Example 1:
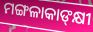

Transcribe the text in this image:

ମଙ୍ଗଳାକାଙ୍‍କ୍ଷୀ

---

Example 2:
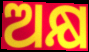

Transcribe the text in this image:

ଅକ୍ଷ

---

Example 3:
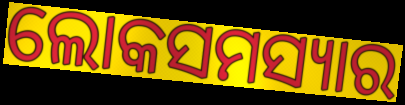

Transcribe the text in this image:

ଲୋକସମସ୍ୟାର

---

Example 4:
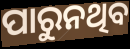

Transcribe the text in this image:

ପାରୁନଥିବ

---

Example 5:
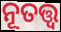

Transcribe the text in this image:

ନୂତତ୍ତ୍ଵ